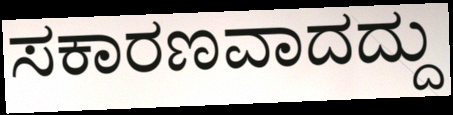
ಸಕಾರಣವಾದದ್ದು